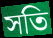
সতি